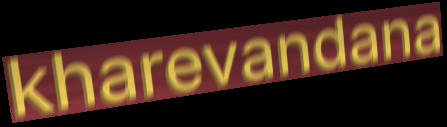
kharevandana